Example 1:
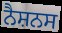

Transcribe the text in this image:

ਨੈਸ਼ਨਸ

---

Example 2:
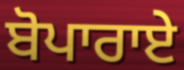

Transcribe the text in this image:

ਬੋਪਾਰਾਏ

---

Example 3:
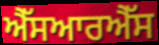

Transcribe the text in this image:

ਐੱਸਆਰਐੱਸ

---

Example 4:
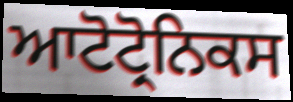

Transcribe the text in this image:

ਆਟੋਟ੍ਰੋਨਿਕਸ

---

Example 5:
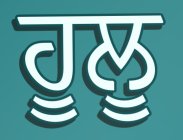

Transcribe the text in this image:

ਹੂਲੂ